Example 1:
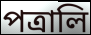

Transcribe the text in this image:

পত্রালি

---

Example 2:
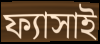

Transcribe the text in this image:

ফ্যাসাই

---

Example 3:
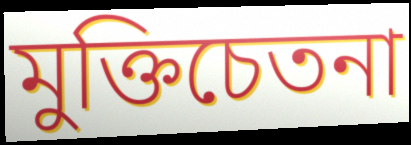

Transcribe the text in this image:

মুক্তিচেতনা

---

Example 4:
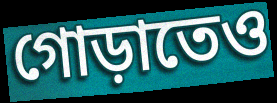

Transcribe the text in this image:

গোড়াতেও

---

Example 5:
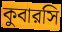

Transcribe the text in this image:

কুবারসি